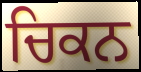
ਚਿਕਨ